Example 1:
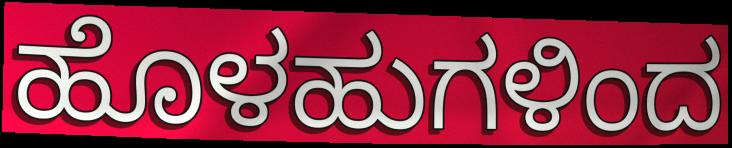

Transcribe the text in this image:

ಹೊಳಹುಗಳಿಂದ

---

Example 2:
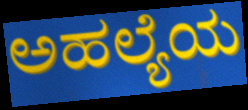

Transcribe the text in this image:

ಅಹಲ್ಯೆಯ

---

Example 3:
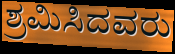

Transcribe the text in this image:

ಶ್ರಮಿಸಿದವರು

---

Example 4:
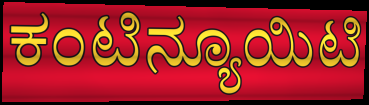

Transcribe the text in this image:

ಕಂಟಿನ್ಯೂಯಿಟಿ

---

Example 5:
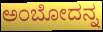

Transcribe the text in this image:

ಅಂಬೋದನ್ನ